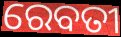
ରେବତୀ